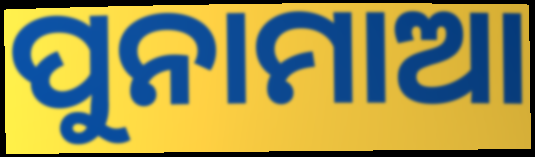
ପୁନାମାଆ